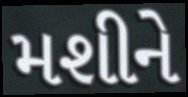
મશીને